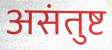
असंतुष्ट